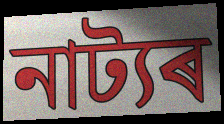
নাট্যৰ